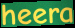
heera